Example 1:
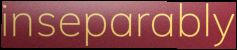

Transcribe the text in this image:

inseparably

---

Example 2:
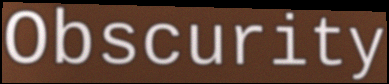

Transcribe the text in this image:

Obscurity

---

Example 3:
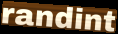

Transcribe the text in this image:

randint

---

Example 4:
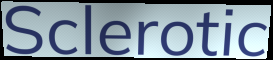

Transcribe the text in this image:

Sclerotic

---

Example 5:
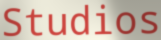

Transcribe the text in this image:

Studios